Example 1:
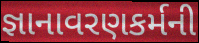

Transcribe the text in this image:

જ્ઞાનાવરણકર્મની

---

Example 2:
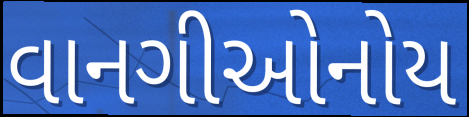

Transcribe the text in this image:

વાનગીઓનોય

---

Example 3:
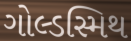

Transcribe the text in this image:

ગોલ્ડસ્મિથ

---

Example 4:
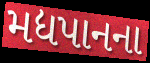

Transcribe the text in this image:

મદ્યપાનના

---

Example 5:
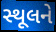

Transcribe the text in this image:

સ્થૂલને